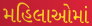
મહિલાઓમાં